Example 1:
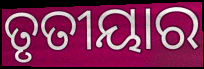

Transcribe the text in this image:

ତୃତୀୟାର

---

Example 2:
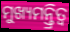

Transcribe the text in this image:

ମୁଖ୍ୟମନ୍ତ୍ରିତ୍ୱ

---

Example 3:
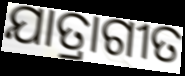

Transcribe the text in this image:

ଯାତ୍ରାଗୀତ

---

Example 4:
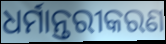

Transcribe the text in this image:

ଧର୍ମାନ୍ତରୀକରଣ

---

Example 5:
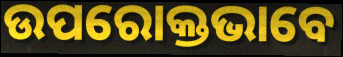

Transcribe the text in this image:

ଉପରୋକ୍ତଭାବେ